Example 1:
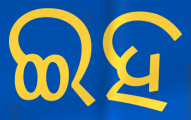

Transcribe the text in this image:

ଇହ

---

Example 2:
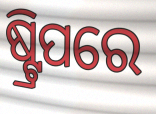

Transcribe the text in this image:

ଷ୍ଟ୍ରିପରେ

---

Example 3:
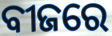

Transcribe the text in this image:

ବୀଜରେ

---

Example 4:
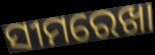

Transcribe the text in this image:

ସୀମରେଖା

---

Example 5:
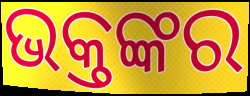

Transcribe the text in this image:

ଭକ୍ତଙ୍କର